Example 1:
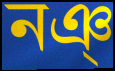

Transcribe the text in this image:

নঞ্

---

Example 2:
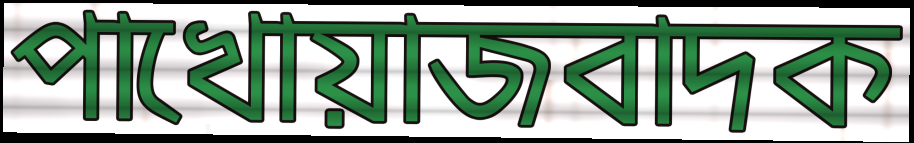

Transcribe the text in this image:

পাখোয়াজবাদক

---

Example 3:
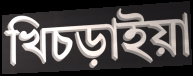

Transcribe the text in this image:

খিচড়াইয়া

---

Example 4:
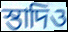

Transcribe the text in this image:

স্তাদিও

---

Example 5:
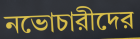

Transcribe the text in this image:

নভোচারীদের